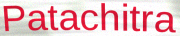
Patachitra